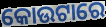
କୋଉଟାରେ